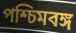
পশ্চিমবঙ্গ